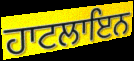
ਹਾਟਲਾਇਨ